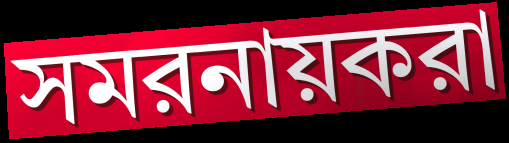
সমরনায়করা